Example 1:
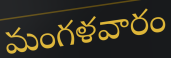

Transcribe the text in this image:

మంగళవారం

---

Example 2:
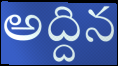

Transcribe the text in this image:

అద్దిన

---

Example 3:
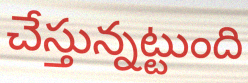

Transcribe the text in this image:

చేస్తున్నట్టుంది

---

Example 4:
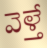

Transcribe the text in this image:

వెళ్తే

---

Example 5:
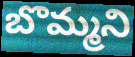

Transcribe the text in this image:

బొమ్మని